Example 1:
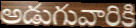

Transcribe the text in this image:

అడుగువారికి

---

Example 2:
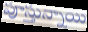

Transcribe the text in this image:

పూస్తున్నాయి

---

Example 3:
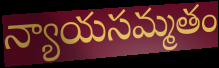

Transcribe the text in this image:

న్యాయసమ్మతం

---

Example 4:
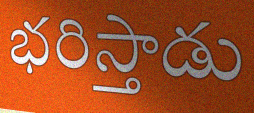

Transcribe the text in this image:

భరిస్తాడు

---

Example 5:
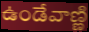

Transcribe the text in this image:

ఉండేవాణ్ణి